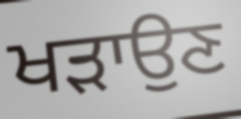
ਖੜਾਉਣ